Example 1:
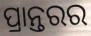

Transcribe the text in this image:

ପ୍ରାନ୍ତରର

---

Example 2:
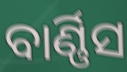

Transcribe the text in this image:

ବାର୍ଣ୍ଣିସ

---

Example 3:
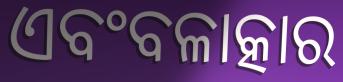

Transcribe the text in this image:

ଏବଂବଳାତ୍କାର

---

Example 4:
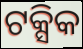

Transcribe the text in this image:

ଟକ୍ସିକ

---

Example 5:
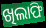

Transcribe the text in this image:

ଖିଲାଫି